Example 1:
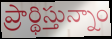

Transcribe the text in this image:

ప్రార్థిస్తున్నాం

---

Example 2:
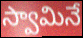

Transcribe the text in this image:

స్వామినే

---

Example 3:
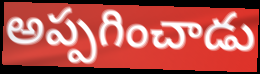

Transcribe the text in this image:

అప్పగించాడు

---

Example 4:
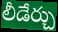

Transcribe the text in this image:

లీడేర్చు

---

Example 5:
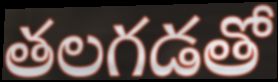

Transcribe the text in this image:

తలగడతో